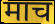
माच